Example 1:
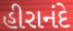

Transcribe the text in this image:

હીરાનંદે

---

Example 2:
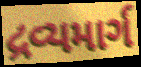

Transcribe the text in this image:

દ્રવ્યમાર્ગ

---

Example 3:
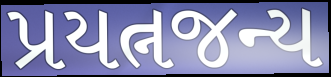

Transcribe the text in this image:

પ્રયત્નજન્ય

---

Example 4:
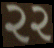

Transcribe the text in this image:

રર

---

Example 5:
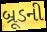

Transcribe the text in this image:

બ્રૂડની